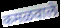
कमळवाले